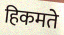
हिकमते